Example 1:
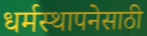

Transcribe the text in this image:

धर्मस्थापनेसाठी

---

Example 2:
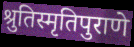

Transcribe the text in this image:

श्रुतिस्मृतिपुराणे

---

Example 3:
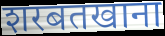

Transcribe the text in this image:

शरबतखाना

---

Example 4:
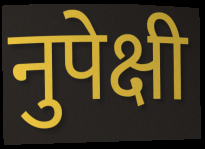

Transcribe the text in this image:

नुपेक्षी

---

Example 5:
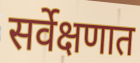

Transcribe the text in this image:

सर्वेक्षणात